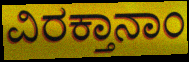
ವಿರಕ್ತಾನಾಂ